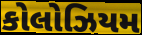
કોલોઝિયમ